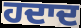
ਹਦਾਦ